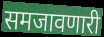
समजावणारी